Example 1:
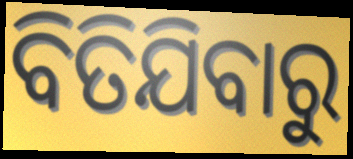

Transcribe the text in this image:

ବିତିଯିବାରୁ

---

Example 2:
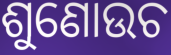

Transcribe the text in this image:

ଶୁଣୋଉଚ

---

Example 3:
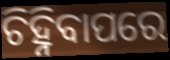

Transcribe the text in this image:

ଚିହ୍ନିବାପରେ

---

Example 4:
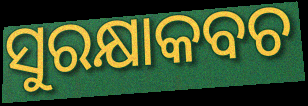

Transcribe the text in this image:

ସୁରକ୍ଷାକବଚ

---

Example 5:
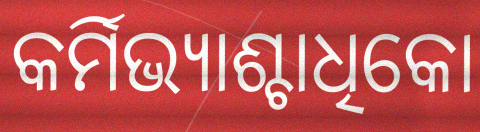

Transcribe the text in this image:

କର୍ମିଭ୍ୟାଶ୍ଚାଧିକୋ